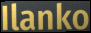
Ilanko